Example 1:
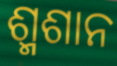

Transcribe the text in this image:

ଶ୍ମଶାନ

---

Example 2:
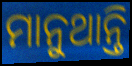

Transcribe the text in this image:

ମାନୁଥାନ୍ତି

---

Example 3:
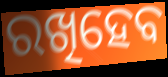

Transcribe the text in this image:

ରଖିହେବ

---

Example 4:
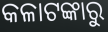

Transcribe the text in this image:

କଳାଟଙ୍କାରୁ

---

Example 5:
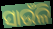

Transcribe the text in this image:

ସାଉଁଳି